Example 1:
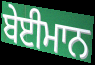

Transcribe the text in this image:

ਬੇਈਮਾਨ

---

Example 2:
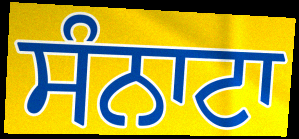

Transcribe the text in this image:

ਸੰਨਾਟਾ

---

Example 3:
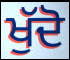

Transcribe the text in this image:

ਖੁੱਦੋ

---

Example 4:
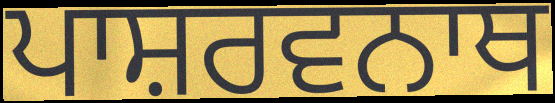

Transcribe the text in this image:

ਪਾਸ਼ਰਵਨਾਥ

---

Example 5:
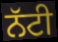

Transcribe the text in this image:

ਨੱਟੀ